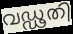
വഡ്ഢതി